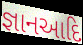
જ્ઞાનઆદિ